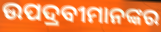
ଉପଦ୍ରବୀମାନଙ୍କର